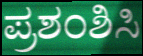
ಪ್ರಶಂಶಿಸಿ